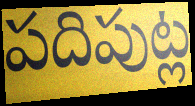
పదిపుట్ల